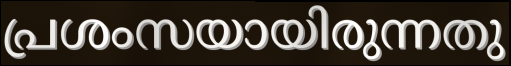
പ്രശംസയായിരുന്നതു